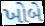
ખોબે